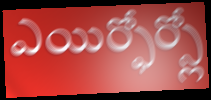
ఎయిర్ఫోర్స్లో